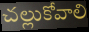
చల్లుకోవాలి